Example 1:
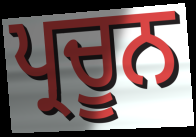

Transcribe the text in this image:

ਪ੍ਰਚੂਨ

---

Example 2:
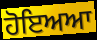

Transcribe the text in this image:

ਹੋਇਅਆ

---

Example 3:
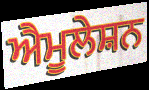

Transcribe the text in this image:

ਐਮੂਲੇਸ਼ਨ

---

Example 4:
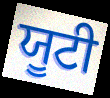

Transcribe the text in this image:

ਯੂਟੀ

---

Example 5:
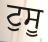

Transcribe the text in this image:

ਟੁਸੂ